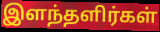
இளந்தளிர்கள்